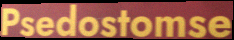
Psedostomse